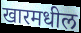
खारमधील